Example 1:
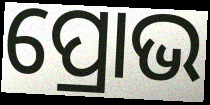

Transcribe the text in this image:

ପ୍ରୋଭ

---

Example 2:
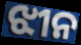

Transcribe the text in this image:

ଝୀନ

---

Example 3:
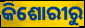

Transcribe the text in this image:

କିଶୋରୀରୁ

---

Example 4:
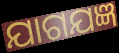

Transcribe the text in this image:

ଯାଗଯଜ୍ଞ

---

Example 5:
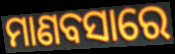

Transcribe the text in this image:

ମାଣବସାରେ